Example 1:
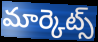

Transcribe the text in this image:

మార్కెట్స్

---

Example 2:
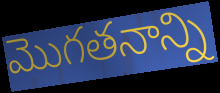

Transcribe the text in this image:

మొగతనాన్ని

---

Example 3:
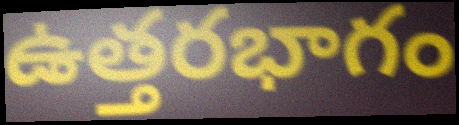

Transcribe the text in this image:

ఉత్తరభాగం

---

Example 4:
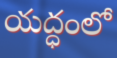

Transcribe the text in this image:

యద్ధంలో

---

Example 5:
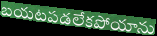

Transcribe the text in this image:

బయటపడలేకపోయాను